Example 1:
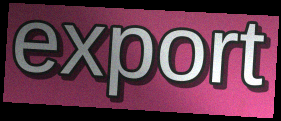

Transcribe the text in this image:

export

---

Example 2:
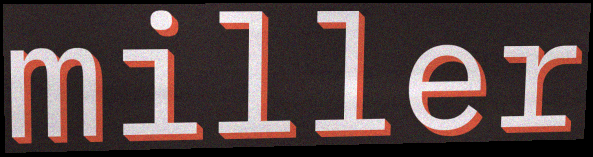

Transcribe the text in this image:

miller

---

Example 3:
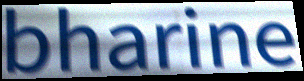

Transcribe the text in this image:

bharine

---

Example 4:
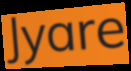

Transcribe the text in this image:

Jyare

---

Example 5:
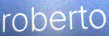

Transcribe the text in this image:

roberto